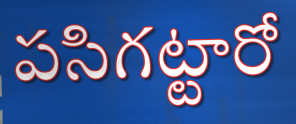
పసిగట్టారో